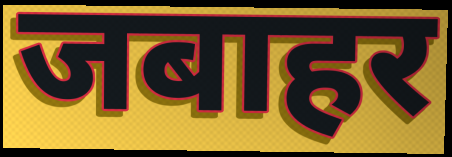
जबाहर